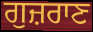
ਗੁਜ਼ਰਾਣ